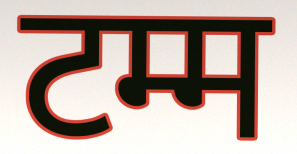
टम्म